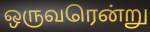
ஒருவரென்று